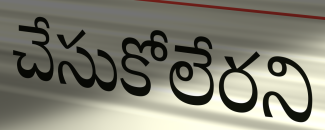
చేసుకోలేరని